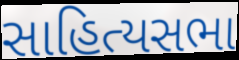
સાહિત્યસભા